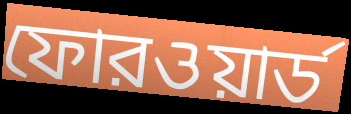
ফোরওয়ার্ড